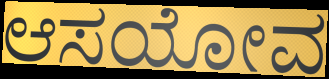
ಆಸಯೋವ